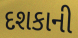
દશકાની